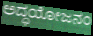
ಅದ್ಧಯೋಜನಂ